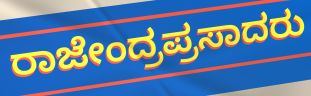
ರಾಜೇಂದ್ರಪ್ರಸಾದರು